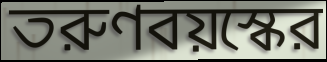
তরুণবয়স্কের